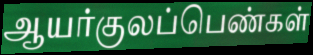
ஆயர்குலப்பெண்கள்